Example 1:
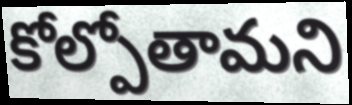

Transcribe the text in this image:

కోల్పోతామని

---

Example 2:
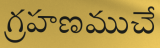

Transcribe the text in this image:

గ్రహణముచే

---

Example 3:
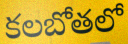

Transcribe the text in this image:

కలబోతలో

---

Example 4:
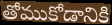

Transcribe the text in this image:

తోముకోడానికి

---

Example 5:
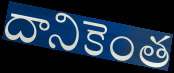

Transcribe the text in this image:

దానికెంత